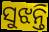
ସୁଝନ୍ତି